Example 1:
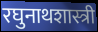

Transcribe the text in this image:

रघुनाथशास्त्री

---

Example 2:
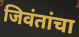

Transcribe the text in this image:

जिवंतांचा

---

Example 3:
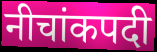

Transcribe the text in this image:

नीचांकपदी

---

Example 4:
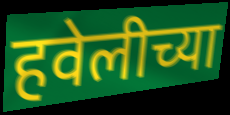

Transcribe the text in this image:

हवेलीच्या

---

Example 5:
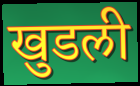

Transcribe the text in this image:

खुडली